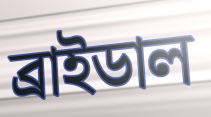
ব্রাইডাল